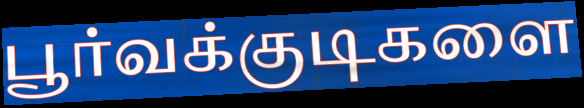
பூர்வக்குடிகளை